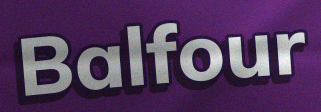
Balfour